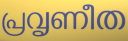
പ്രവൃണീത